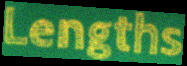
Lengths